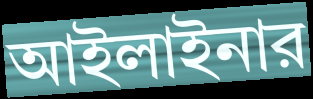
আইলাইনার